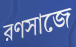
রণসাজে